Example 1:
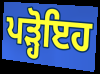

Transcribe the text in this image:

ਪੜ੍ਹੋਇਹ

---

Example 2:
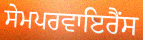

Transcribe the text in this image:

ਸੇਮਪਰਵਾਇਰੈਂਸ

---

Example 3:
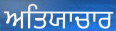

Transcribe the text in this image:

ਅਤਿਯਾਚਾਰ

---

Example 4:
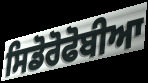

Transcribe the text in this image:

ਸਿਡੋਰੋਫੋਬੀਆ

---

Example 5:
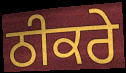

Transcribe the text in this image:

ਠੀਕਰੇ